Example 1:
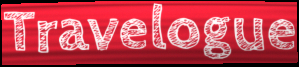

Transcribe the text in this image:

Travelogue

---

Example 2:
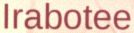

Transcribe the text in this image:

Irabotee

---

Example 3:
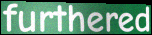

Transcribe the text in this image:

furthered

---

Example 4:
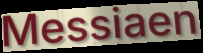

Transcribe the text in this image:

Messiaen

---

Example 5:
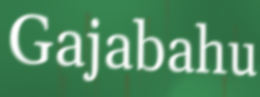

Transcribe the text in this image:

Gajabahu